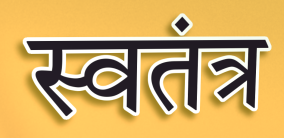
स्‍वतंत्र